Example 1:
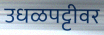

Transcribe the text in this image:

उधळपट्टीवर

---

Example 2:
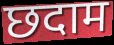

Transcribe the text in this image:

छदाम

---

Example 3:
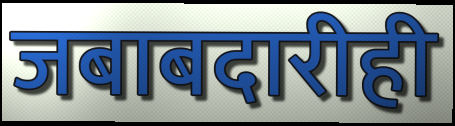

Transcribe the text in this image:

जबाबदारीही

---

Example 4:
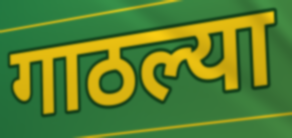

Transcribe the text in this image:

गाठल्या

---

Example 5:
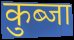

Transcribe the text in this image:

कुब्जा